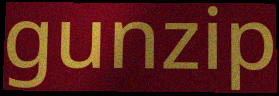
gunzip